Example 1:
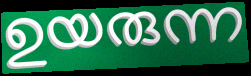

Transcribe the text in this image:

ഉയരുന്ന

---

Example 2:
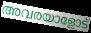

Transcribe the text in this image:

അവരയാളോട്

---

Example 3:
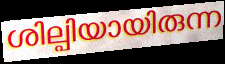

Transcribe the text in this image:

ശില്പിയായിരുന്ന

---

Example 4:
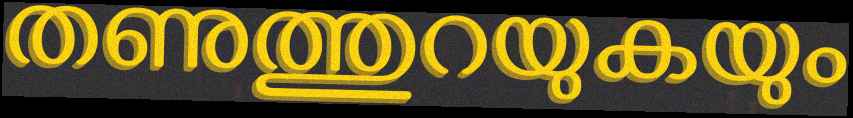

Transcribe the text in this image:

തണുത്തുറയുകയും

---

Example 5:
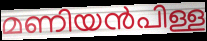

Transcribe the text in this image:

മണിയൻപിള്ള